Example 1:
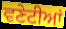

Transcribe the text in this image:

ਵਣੇਟੀਆਂ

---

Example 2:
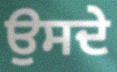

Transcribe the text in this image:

ਉਸਦੇ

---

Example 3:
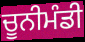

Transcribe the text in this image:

ਚੂਨੀਮੰਡੀ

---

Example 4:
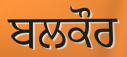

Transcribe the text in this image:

ਬਲਕੌਰ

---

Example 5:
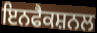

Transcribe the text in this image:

ਇਨਫੈਕਸ਼ਨਲ